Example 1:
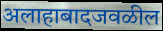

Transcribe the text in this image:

अलाहाबादजवळील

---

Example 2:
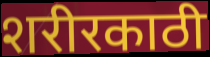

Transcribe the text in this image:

शरीरकाठी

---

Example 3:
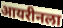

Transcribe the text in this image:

आयरीनला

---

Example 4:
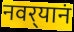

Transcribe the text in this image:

नवर्‍यानं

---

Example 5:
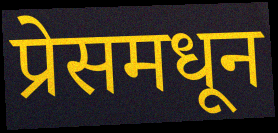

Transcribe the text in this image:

प्रेसमधून